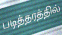
படித்தரத்தில்